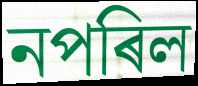
নপৰিল